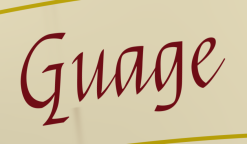
Guage